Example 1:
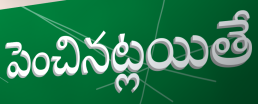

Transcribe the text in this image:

పెంచినట్లయితే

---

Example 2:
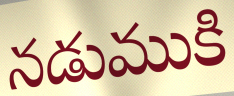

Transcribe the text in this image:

నడుముకి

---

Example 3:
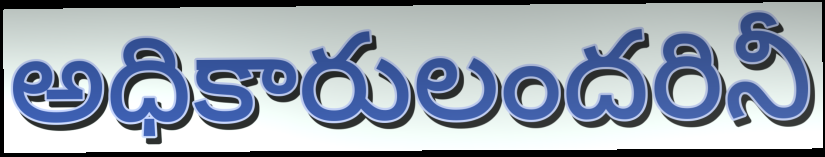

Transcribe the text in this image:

అధికారులందరినీ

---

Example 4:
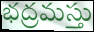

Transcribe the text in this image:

భద్రమస్తు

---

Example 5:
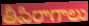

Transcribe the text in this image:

తీపిరాగాలు